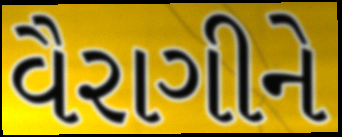
વૈરાગીને